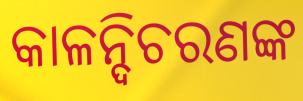
କାଳନ୍ଦିଚରଣଙ୍କ